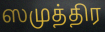
ஸமுத்திர